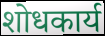
शोधकार्य